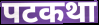
पटकथा